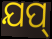
ଯପ୍